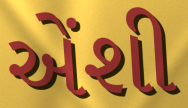
એંશી